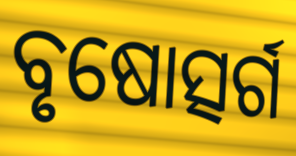
ବୃଷୋତ୍ସର୍ଗ